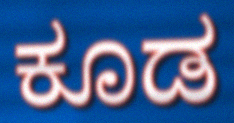
ಕೂಡ